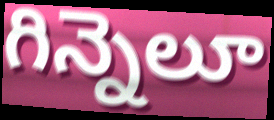
గిన్నెలూ